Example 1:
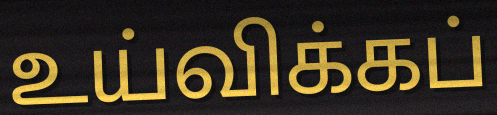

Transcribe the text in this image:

உய்விக்கப்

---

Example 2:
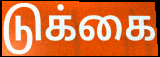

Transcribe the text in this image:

டுக்கை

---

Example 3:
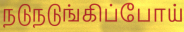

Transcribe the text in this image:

நடுநடுங்கிப்போய்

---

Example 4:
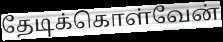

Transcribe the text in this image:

தேடிக்கொள்வேன்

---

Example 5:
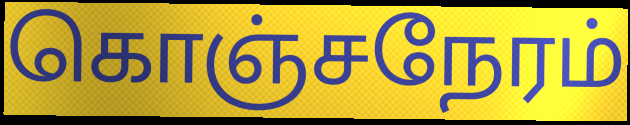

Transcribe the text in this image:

கொஞ்சநேரம்